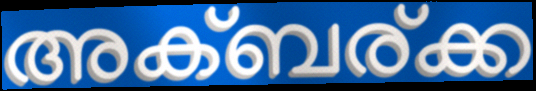
അക്ബര്ക്ക